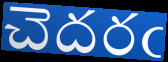
చెదరఁ